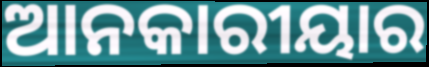
ଆନକାରୀୟାର